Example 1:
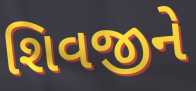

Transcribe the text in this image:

શિવજીને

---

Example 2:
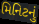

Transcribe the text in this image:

મિનિટનું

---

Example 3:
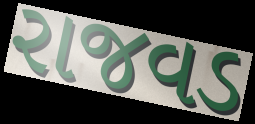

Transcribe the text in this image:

રાજવડ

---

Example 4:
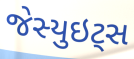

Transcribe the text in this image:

જેસ્યુઇટ્સ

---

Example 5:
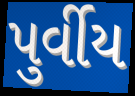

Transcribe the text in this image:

પુર્વીય